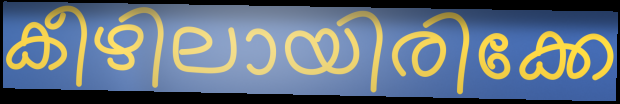
കീഴിലായിരിക്കേ